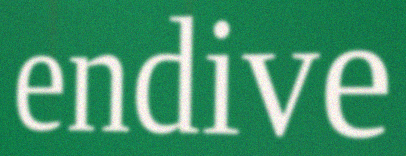
endive